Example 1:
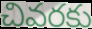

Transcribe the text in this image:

చివరకు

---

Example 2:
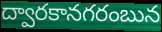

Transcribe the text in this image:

ద్వారకానగరంబున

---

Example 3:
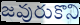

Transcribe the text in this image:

జవురుకొని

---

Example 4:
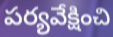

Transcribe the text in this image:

పర్యవేక్షించి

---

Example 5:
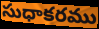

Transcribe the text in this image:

సుధాకరము